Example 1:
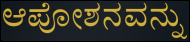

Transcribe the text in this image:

ಆಪೋಶನವನ್ನು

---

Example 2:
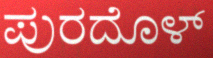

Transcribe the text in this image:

ಪುರದೊಳ್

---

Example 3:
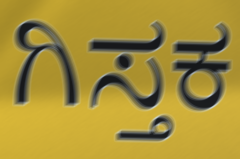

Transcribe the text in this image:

ಗಿಸ್ತಕ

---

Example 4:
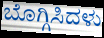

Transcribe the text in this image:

ಬೊಗ್ಗಿಸಿದಳು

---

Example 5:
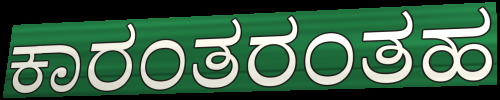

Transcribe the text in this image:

ಕಾರಂತರಂತಹ